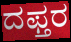
ದಫ್ತರ